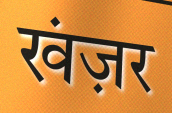
खंज़र